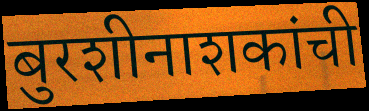
बुरशीनाशकांची